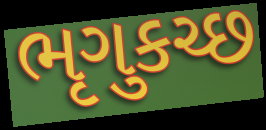
ભૃગુકચ્છ